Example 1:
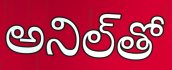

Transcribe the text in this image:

అనిల్‌తో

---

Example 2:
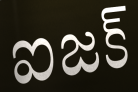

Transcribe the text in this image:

ఐజక్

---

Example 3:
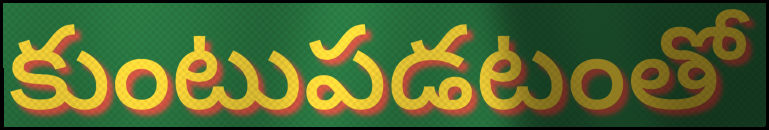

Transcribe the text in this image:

కుంటుపడటంతో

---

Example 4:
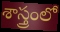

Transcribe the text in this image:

శాస్త్రంలో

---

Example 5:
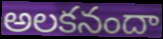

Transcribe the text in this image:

అలకనందా